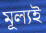
মূল্যই